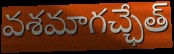
వశమాగచ్ఛేత్